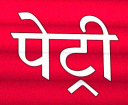
पेट्री